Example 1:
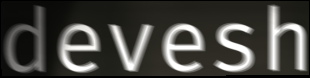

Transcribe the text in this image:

devesh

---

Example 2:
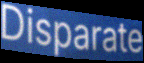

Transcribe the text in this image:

Disparate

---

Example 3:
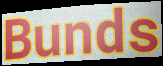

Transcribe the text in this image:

Bunds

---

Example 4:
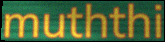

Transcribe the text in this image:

muththi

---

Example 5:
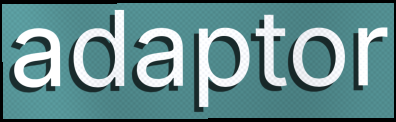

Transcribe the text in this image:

adaptor